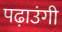
पढ़ाउंगी